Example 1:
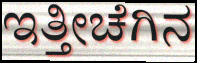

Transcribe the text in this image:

ಇತ್ತೀಚೆಗಿನ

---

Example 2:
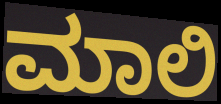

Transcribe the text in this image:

ಮಾಲಿ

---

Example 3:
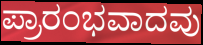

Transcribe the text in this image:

ಪ್ರಾರಂಭವಾದವು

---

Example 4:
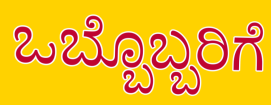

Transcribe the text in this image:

ಒಬ್ಬೊಬ್ಬರಿಗೆ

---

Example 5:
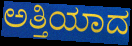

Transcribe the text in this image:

ಅತ್ತಿಯಾದ